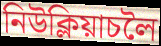
নিউক্লিয়াচলৈ